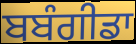
ਬਬੰਗੀਡਾ